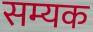
सम्‍यक